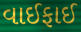
વાઈફાઈ